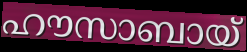
ഹൗസാബായ്